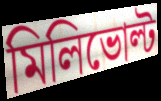
মিলিভোল্ট